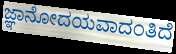
ಜ್ಞಾನೋದಯವಾದಂತಿದೆ